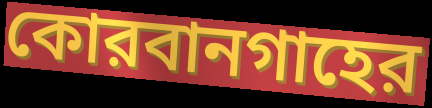
কোরবানগাহের